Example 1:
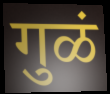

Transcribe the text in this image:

गुळं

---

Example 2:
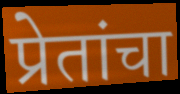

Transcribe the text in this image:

प्रेतांचा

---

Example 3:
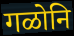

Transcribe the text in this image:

गळोनि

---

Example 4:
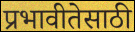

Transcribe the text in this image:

प्रभावीतेसाठी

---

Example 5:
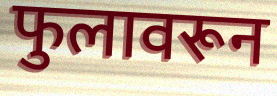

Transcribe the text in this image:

फुलावरून